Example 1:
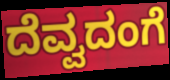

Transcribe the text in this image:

ದೆವ್ವದಂಗೆ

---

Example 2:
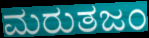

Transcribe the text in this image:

ಮರುತಜಂ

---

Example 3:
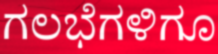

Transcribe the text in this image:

ಗಲಭೆಗಳಿಗೂ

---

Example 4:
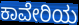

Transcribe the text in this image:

ಕಾವೇರಿಯ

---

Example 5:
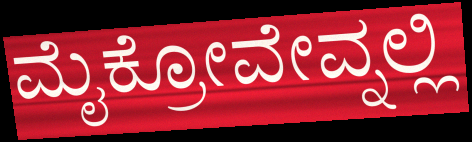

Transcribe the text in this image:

ಮೈಕ್ರೋವೇವ್ನಲ್ಲಿ